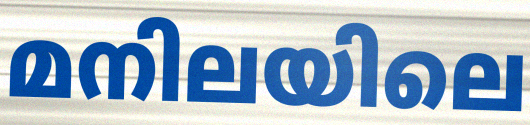
മനിലയിലെ